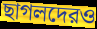
ছাগলদেরও